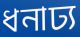
ধনাঢ্য